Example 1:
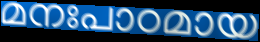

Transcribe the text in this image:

മനഃപാഠമായ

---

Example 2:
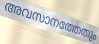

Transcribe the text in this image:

അവസാനത്തേതും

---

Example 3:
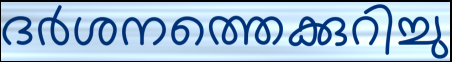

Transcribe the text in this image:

ദർശനത്തെക്കുറിച്ചു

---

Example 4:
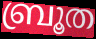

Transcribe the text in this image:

ബ്രൂത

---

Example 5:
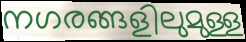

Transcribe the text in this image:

നഗരങ്ങളിലുമുള്ള